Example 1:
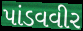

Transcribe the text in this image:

પાંડવવીર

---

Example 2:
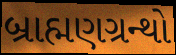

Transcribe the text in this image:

બ્રાહ્મણગ્રન્થો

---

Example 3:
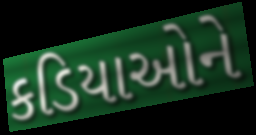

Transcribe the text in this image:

કડિયાઓને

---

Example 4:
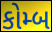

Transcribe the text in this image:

કોમ્બ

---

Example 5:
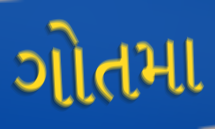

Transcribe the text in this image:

ગોતમા